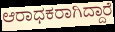
ಆರಾಧಕರಾಗಿದ್ದಾರೆ